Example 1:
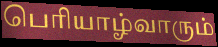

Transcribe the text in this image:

பெரியாழ்வாரும்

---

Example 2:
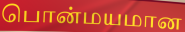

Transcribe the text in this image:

பொன்மயமான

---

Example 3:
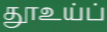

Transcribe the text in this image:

தூஉய்ப்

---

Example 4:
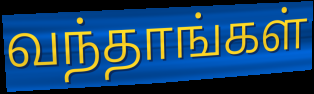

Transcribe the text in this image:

வந்தாங்கள்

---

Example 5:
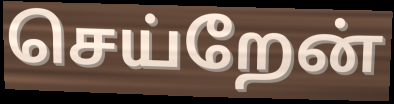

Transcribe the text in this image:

செய்றேன்